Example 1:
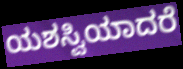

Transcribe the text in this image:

ಯಶಸ್ವಿಯಾದರೆ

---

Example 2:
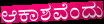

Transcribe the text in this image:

ಆಕಾಶವೆಂದು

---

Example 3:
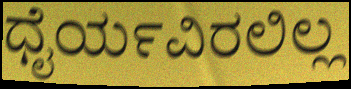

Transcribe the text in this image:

ಧೈರ್ಯವಿರಲಿಲ್ಲ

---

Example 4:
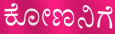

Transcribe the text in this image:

ಕೋಣನಿಗೆ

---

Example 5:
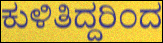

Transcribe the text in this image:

ಕುಳಿತಿದ್ದರಿಂದ